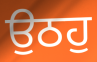
ਉਠਹੁ